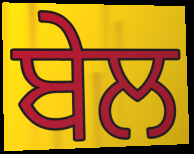
ਬੇਲ